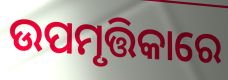
ଉପମୃତ୍ତିକାରେ